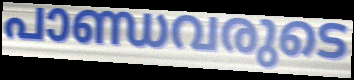
പാണ്ഡവരുടെ